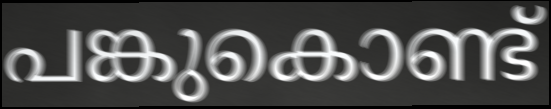
പങ്കുകൊണ്ട്